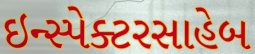
ઇન્સ્પેક્ટરસાહેબ